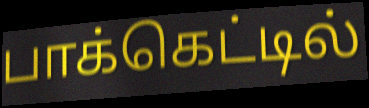
பாக்கெட்டில்